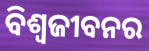
ବିଶ୍ଵଜୀବନର